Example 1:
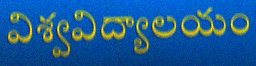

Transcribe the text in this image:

విశ్వవిద్యాలయం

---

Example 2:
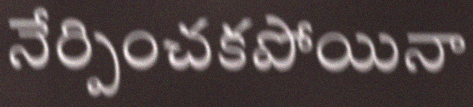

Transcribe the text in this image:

నేర్పించకపోయినా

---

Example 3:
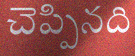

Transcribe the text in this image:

చెప్పినది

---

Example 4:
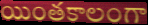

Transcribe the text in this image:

యింతకాలంగా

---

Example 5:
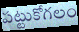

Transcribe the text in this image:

పట్టుకోగలం